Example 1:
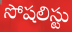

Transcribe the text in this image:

సోషలిస్టు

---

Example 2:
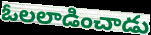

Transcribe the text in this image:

ఓలలాడించాడు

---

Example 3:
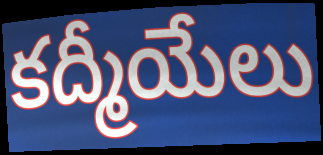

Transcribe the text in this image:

కద్మీయేలు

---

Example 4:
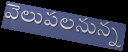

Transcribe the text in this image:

వెలుపలనున్న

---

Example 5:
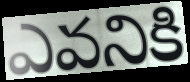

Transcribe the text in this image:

ఎవనికి